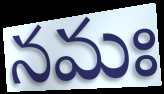
నమః